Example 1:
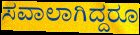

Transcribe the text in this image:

ಸವಾಲಾಗಿದ್ದರೂ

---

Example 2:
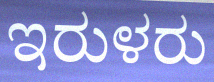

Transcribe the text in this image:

ಇರುಳರು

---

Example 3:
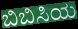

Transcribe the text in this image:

ಬಿಬಿಸಿಯ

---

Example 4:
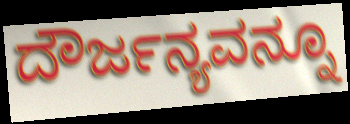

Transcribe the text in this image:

ದೌರ್ಜನ್ಯವನ್ನೂ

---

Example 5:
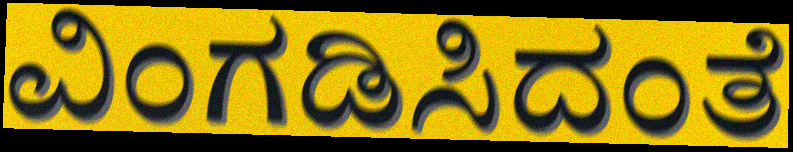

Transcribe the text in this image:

ವಿಂಗಡಿಸಿದಂತೆ